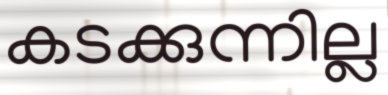
കടക്കുന്നില്ല